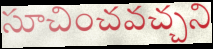
సూచించవచ్చని